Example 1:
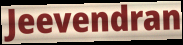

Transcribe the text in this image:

Jeevendran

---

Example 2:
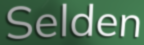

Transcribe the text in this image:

Selden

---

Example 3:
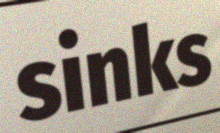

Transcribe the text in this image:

sinks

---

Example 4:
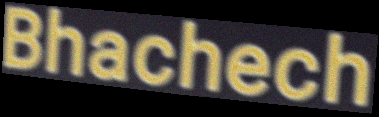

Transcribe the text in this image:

Bhachech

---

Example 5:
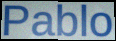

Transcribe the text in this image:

Pablo